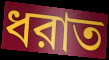
ধরাত